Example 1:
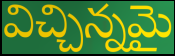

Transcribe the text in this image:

విచ్చిన్నమై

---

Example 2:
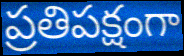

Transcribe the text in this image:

ప్రతిపక్షంగా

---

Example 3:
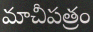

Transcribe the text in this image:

మాచీపత్రం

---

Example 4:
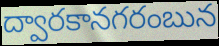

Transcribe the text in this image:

ద్వారకానగరంబున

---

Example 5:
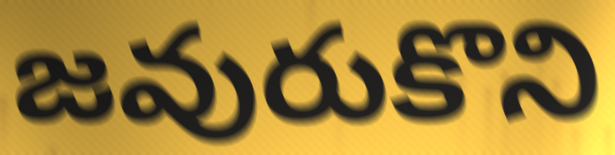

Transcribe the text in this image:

జవురుకొని